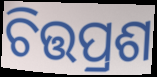
ଚିତ୍ତପ୍ରଶ